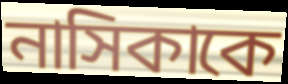
নাসিকাকে